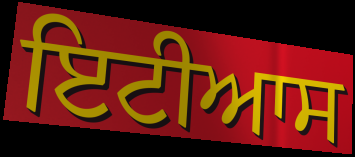
ਇਟੀਆਸ